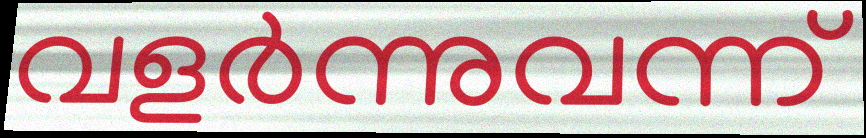
വളർന്നുവന്ന്